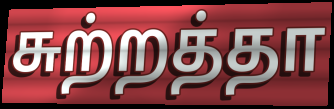
சுற்றத்தா